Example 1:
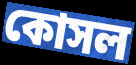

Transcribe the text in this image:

কোসল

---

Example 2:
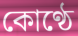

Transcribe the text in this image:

কোণ্ঠে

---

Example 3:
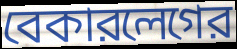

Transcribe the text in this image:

বেকারলেগের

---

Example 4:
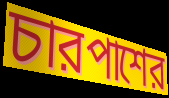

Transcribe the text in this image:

চারপাশের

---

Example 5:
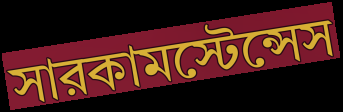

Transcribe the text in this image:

সারকামস্টেন্সেস